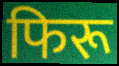
फिरू